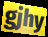
gjhy